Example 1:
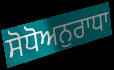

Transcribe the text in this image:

ਸੋਧੋਅਨੁਰਾਧਾ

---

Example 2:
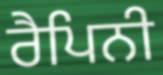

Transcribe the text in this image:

ਰੈਪਿਨੀ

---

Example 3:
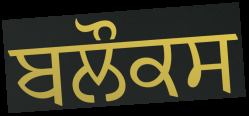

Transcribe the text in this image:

ਬਲੌਕਸ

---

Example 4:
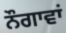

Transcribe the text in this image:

ਨੌਗਾਵਾਂ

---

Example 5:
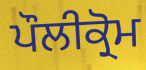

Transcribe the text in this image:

ਪੌਲੀਕ੍ਰੋਮ